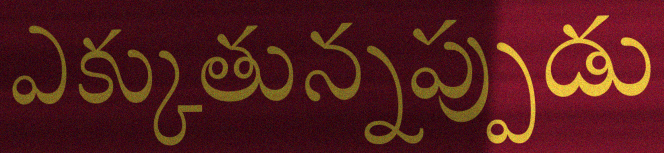
ఎక్కుతున్నప్పుడు